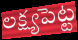
లక్ష్యపెట్ట